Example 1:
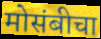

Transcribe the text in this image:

मोसंबीचा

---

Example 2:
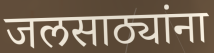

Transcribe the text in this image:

जलसाठ्यांना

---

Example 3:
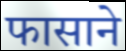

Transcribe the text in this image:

फासाने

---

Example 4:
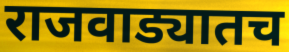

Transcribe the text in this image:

राजवाड्यातच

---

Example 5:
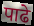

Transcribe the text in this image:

पाढे